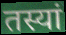
तस्यां